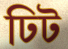
ঢিট